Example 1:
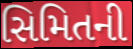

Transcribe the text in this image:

સિમિતની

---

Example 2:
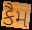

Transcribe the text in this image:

કૈમ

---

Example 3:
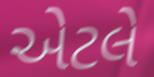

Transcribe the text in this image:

એટલે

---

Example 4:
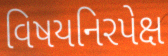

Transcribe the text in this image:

વિષયનિરપેક્ષ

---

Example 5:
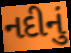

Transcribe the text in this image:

નદીનું